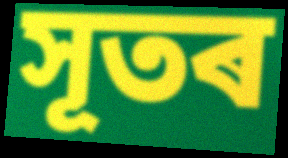
সূতৰ